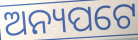
ଅନ୍ୟପଟେ